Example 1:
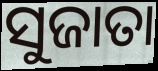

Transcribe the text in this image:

ସୁଜାତା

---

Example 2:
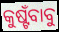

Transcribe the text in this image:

କୁଷ୍ଟଁବାବୁ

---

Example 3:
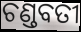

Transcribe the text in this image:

ଚଣ୍ଡବତୀ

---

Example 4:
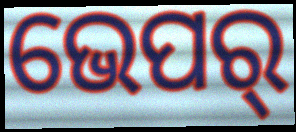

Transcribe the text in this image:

ଭେପର୍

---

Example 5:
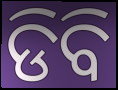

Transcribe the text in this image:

ଡିବି